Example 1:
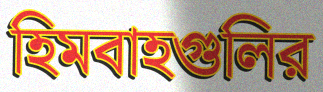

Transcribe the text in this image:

হিমবাহগুলির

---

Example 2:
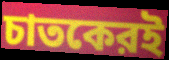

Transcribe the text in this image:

চাতকেরই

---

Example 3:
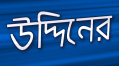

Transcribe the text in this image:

উদ্দিনের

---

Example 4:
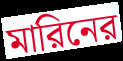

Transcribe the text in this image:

মারিনের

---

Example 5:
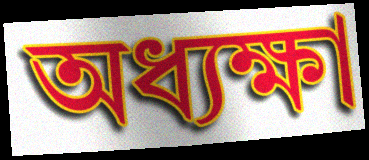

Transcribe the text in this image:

অধ্যক্ষা